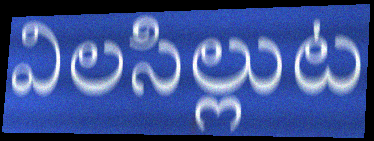
విలసిల్లుట